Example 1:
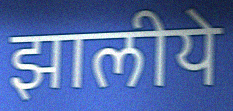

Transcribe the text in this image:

झालीये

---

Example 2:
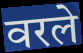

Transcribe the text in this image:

वरले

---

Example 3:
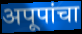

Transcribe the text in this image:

अपूपांचा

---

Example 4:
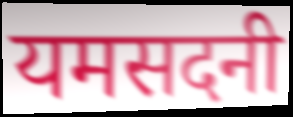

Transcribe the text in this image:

यमसदनी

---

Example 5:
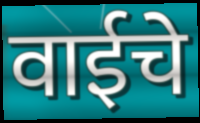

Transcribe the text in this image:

वाईचे